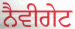
ਨੈਵੀਗੇਟ